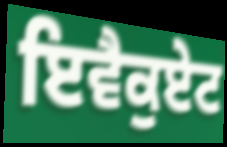
ਇਵੈਕੁਏਟ